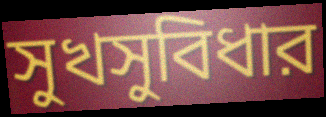
সুখসুবিধার